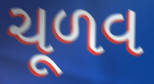
ચૂળવ